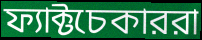
ফ্যাক্টচেকাররা